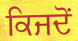
ਕਿਜਦੋਂ